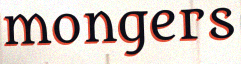
mongers